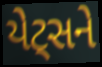
યેટ્સને